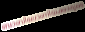
ബാബിലോണിയക്കാരുടെ